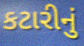
કટારીનું